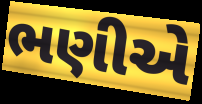
ભણીએ